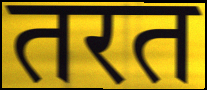
तरत